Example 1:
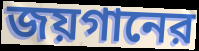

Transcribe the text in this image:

জয়গানের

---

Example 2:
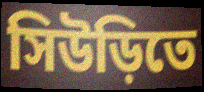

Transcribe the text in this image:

সিউড়িতে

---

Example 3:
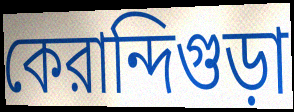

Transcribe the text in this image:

কেরান্দিগুড়া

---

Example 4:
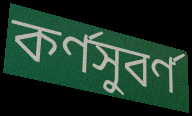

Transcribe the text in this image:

কর্ণসুবর্ণ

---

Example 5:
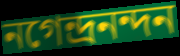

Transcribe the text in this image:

নগেন্দ্রনন্দন